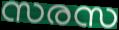
സരസ